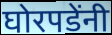
घोरपडेंनी